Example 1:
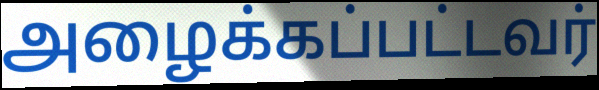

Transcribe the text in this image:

அழைக்கப்பட்டவர்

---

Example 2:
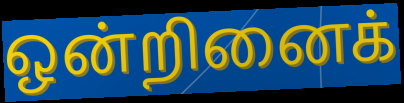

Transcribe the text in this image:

ஒன்றினைக்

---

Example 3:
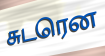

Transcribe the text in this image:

சுடரென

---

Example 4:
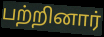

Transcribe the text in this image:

பற்றினார்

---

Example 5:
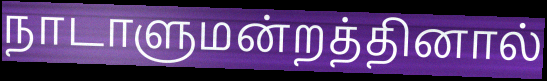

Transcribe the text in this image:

நாடாளுமன்றத்தினால்